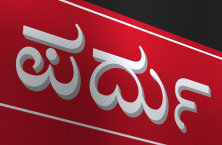
ಪರ್ದು